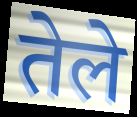
तेले